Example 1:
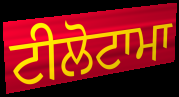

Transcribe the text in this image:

ਟੀਲੋਟਾਮਾ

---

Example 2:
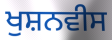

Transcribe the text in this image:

ਖੁਸ਼ਨਵੀਸ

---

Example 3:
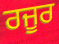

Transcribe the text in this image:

ਰਜੂਰ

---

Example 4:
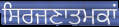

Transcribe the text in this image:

ਸਿਰਜਣਾਤਮਕਾਂ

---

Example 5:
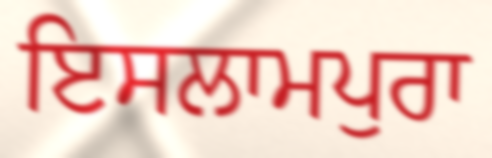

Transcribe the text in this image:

ਇਸਲਾਮਪੁਰਾ